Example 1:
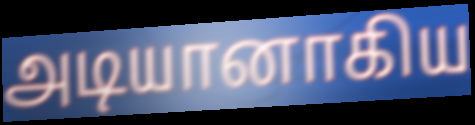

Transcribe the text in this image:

அடியானாகிய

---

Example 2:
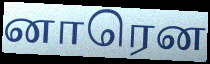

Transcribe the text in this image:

னாரென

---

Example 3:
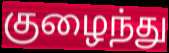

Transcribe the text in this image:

குழைந்து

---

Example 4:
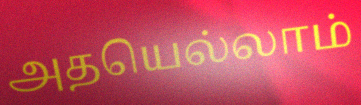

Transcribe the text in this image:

அதயெல்லாம்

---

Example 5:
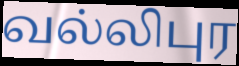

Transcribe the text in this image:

வல்லிபுர